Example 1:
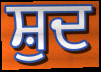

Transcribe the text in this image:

ਸ਼ੁਦ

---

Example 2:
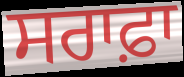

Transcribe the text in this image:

ਸਰਾਫ਼ਾ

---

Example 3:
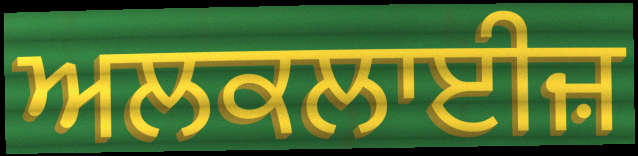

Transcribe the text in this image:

ਅਲਕਲਾਈਜ਼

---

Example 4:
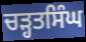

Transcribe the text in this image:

ਚੜ੍ਹਤਸਿੰਘ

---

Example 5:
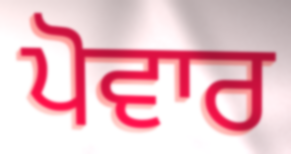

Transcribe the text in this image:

ਪੋਵਾਰ